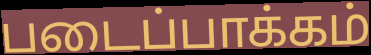
படைப்பாக்கம்